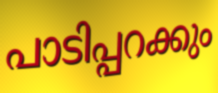
പാടിപ്പറക്കും